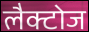
लैक्टोज